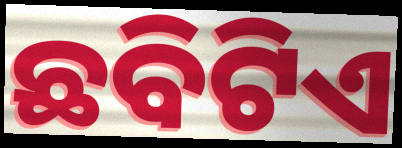
ଛବିଟିଏ